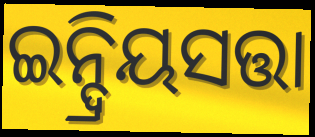
ଇନ୍ଦ୍ରିୟସତ୍ତା